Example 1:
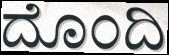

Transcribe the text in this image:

ದೊಂದಿ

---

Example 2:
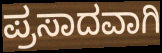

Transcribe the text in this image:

ಪ್ರಸಾದವಾಗಿ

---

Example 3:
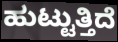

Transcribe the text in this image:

ಹುಟ್ಟುತ್ತಿದೆ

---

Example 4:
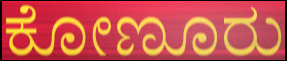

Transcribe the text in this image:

ಕೋಣೂರು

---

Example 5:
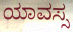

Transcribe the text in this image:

ಯಾವಸ್ಸ